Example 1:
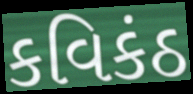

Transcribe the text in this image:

કવિકંઠ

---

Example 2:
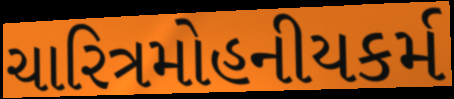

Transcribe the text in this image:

ચારિત્રમોહનીયકર્મ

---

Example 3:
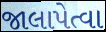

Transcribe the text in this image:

જાલાપેત્વા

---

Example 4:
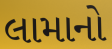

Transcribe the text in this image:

લામાનો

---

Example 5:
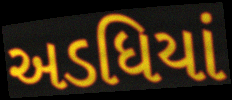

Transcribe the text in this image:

અડધિયાં